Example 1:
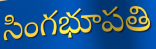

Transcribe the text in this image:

సింగభూపతి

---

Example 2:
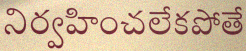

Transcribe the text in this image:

నిర్వహించలేకపోతే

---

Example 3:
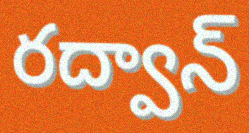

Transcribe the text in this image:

రద్వాన్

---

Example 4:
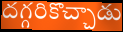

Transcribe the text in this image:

దగ్గరికొచ్చాడు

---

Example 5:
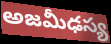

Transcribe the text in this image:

అజమీఢస్య